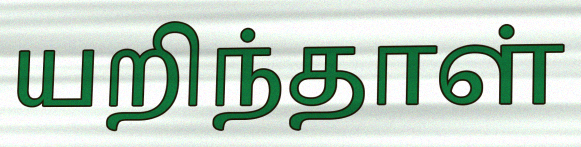
யறிந்தாள்